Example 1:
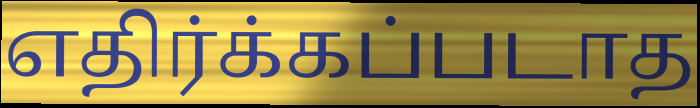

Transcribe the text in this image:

எதிர்க்கப்படாத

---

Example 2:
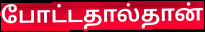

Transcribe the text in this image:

போட்டதால்தான்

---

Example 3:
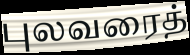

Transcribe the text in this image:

புலவரைத்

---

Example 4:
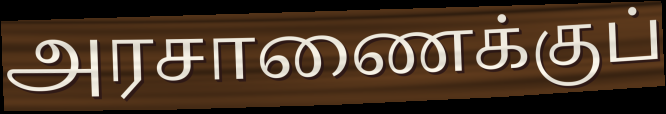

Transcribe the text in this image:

அரசாணைக்குப்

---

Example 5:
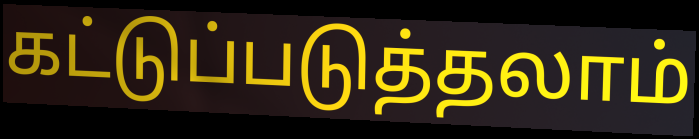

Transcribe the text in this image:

கட்டுப்படுத்தலாம்